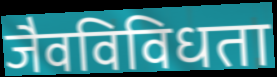
जैवविविधता